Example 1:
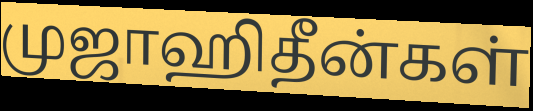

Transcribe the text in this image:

முஜாஹிதீன்கள்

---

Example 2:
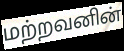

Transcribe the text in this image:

மற்றவனின்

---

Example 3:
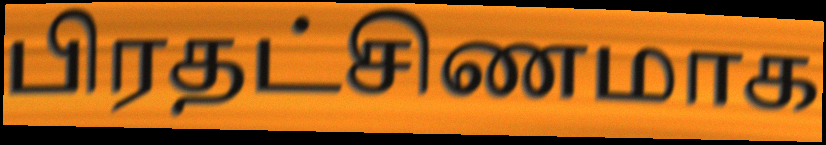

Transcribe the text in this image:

பிரதட்சிணமாக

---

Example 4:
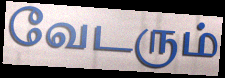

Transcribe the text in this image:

வேடரும்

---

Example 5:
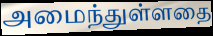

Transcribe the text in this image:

அமைந்துள்ளதை